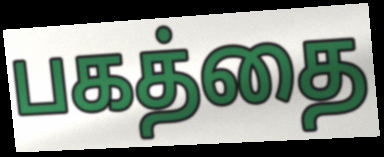
பகத்தை